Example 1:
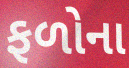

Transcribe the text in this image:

ફળોના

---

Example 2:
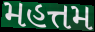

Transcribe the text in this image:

મહત્તમ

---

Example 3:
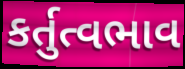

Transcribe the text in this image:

કર્તુત્વભાવ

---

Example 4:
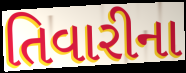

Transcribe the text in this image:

તિવારીના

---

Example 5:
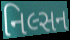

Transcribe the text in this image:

નિલ્સન